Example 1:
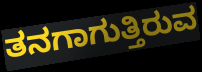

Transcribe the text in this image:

ತನಗಾಗುತ್ತಿರುವ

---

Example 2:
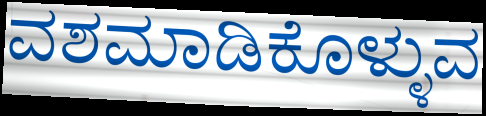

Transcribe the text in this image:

ವಶಮಾಡಿಕೊಳ್ಳುವ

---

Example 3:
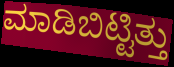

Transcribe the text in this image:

ಮಾಡಿಬಿಟ್ಟಿತ್ತು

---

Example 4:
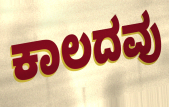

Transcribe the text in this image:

ಕಾಲದವು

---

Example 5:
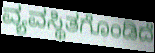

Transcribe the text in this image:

ವ್ಯವಸ್ಥಿತಗೊಂಡಿದೆ